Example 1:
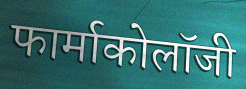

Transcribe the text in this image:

फार्माकोलॉजी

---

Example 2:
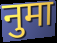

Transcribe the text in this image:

नुमा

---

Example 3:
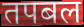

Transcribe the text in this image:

तपबल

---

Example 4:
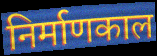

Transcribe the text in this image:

निर्माणकाल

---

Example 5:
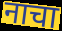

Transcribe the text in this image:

नाचा